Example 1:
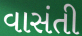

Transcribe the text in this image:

વાસંતી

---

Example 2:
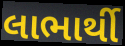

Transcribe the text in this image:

લાભાર્થી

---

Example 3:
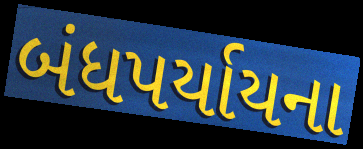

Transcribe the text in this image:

બંધપર્યાયના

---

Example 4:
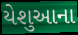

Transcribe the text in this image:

યેશુઆના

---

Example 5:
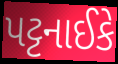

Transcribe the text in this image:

પટ્ટનાઈકે